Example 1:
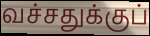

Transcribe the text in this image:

வச்சதுக்குப்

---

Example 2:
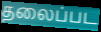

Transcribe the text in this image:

தலைப்பட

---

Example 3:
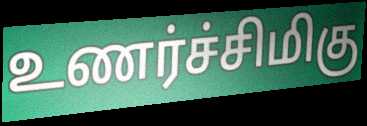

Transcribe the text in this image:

உணர்ச்சிமிகு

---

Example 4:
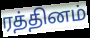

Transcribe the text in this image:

ரத்தினம்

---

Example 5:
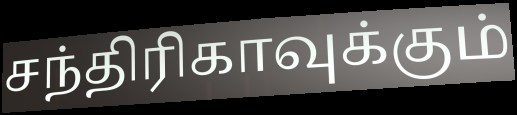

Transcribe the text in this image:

சந்திரிகாவுக்கும்